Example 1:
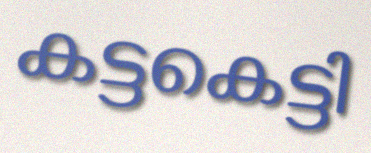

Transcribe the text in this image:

കട്ടകെട്ടി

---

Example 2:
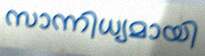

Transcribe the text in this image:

സാന്നിധ്യമായി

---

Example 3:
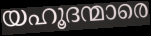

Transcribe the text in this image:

യഹൂദന്മാരെ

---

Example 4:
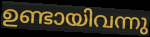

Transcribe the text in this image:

ഉണ്ടായിവന്നു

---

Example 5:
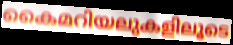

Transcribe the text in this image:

കൈമറിയലുകളിലൂടെ